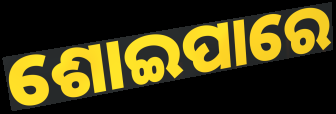
ଶୋଇପାରେ